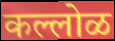
कल्लोळ